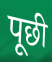
पूछी